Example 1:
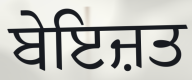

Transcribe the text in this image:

ਬੇਇਜ਼ਤ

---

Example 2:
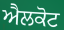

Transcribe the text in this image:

ਐਲਕੋਟ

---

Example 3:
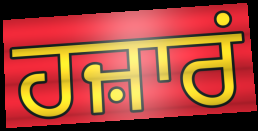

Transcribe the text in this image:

ਹਜ਼ਾਰਂ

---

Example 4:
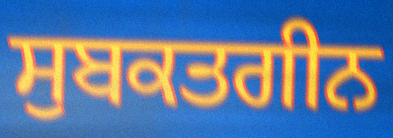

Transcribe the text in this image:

ਸੁਬਕਤਗੀਨ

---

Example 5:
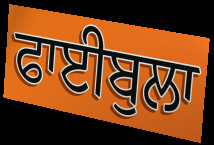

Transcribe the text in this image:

ਫਾਈਬੁਲਾ